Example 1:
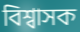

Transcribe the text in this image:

বিশ্বাসক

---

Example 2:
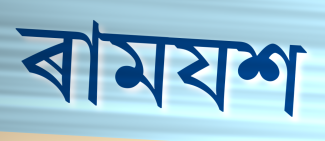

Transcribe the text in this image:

ৰামযশ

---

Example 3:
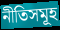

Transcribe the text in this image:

নীতিসমূহ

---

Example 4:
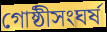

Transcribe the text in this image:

গোষ্ঠীসংঘৰ্ষ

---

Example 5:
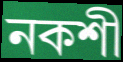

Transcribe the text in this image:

নকশী